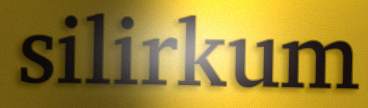
silirkum